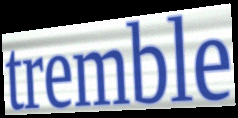
tremble